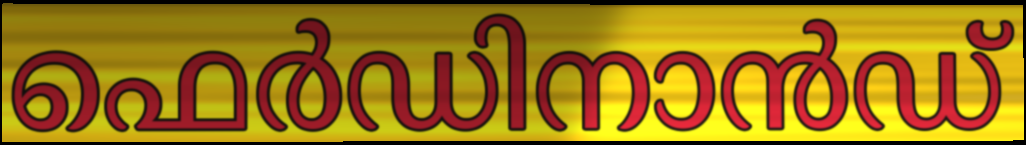
ഫെർഡിനാൻഡ്